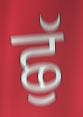
ਛੁੱ